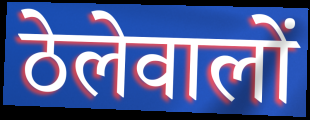
ठेलेवालों